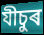
যীচুৰ